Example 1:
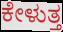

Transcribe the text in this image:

ಕೇಳುತ್ತ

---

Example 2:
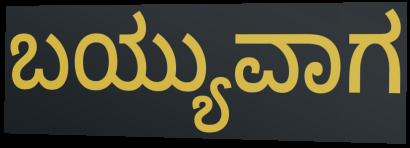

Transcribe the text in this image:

ಬಯ್ಯುವಾಗ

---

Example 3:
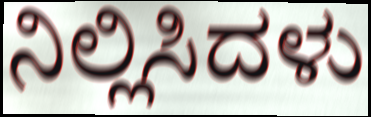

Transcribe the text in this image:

ನಿಲ್ಲಿಸಿದಳು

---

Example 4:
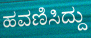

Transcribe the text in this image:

ಹವಣಿಸಿದ್ದು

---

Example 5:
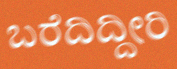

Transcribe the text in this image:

ಬರೆದಿದ್ದೀರಿ